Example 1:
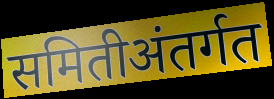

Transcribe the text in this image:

समितीअंतर्गत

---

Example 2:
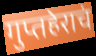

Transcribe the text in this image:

गुप्तहेराचं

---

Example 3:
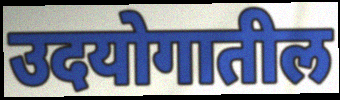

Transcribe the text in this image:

उदयोगातील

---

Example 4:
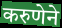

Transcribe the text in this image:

करुणेने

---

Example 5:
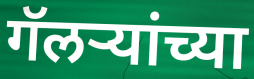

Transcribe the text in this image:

गॅलर्‍यांच्या